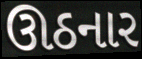
ઊઠનાર